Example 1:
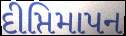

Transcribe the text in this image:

દીપ્તિમાપન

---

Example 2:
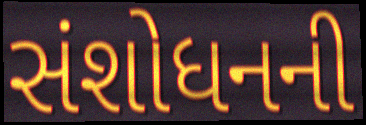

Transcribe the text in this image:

સંશોધનની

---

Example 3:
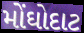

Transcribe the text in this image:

મોંઘોદાટ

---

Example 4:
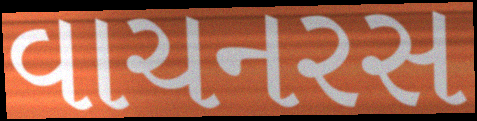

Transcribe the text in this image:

વાચનરસ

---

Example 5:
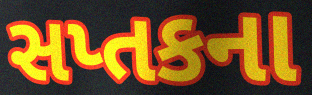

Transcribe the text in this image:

સપ્તકના